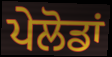
ਪੇਲੋਡਾਂ